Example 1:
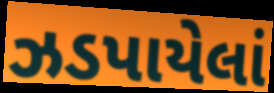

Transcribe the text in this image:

ઝડપાયેલાં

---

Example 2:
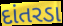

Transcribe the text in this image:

દાંતરડા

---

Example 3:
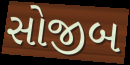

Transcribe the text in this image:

સોજીબ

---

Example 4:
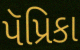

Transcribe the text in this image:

પૅપ્રિકા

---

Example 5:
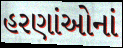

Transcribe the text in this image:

હરણાંઓનાં